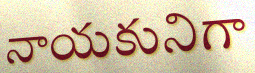
నాయకునిగా